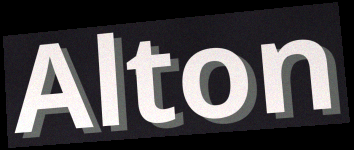
Alton